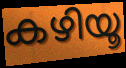
കഴിയൂ